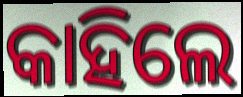
କାହିଲେ